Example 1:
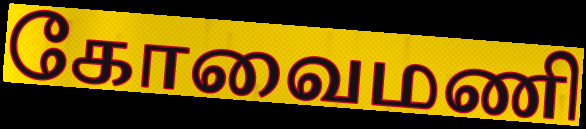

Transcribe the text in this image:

கோவைமணி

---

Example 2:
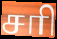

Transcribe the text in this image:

சரி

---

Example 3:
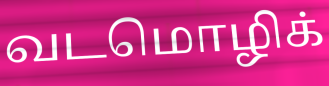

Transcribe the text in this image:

வடமொழிக்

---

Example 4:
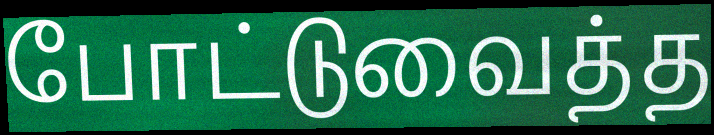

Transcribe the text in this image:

போட்டுவைத்த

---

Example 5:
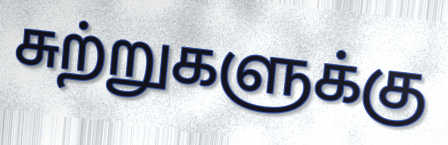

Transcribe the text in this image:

சுற்றுகளுக்கு